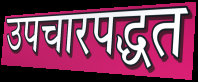
उपचारपद्धत